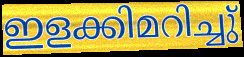
ഇളക്കിമറിച്ചു്